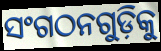
ସଂଗଠନଗୁଡ଼ିକୁ